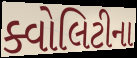
ક્વોલિટીના